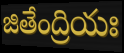
జితేంద్రియః